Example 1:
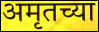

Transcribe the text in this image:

अमृतच्या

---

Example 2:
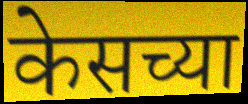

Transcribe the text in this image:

केसच्या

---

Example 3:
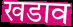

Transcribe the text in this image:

खडाव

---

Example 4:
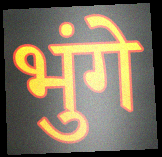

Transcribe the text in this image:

भुंगे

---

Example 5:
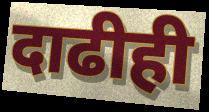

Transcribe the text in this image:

दाढीही